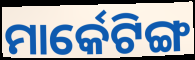
ମାର୍କେଟିଙ୍ଗ